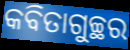
କବିତାଗୁଚ୍ଛର